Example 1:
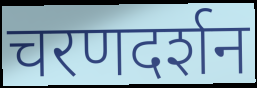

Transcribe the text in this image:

चरणदर्शन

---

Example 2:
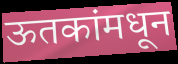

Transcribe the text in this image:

ऊतकांमधून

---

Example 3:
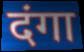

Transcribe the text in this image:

दंगा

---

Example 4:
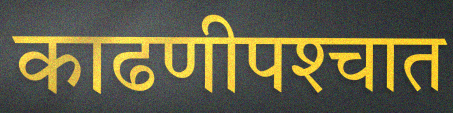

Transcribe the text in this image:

काढणीपश्‍चात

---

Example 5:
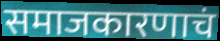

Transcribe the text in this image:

समाजकारणाचं